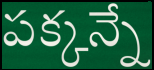
పక్కన్నే